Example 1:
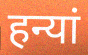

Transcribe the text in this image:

हन्यां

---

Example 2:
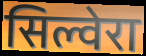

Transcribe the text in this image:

सिल्वेरा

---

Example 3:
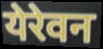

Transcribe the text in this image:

येरेवन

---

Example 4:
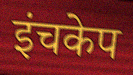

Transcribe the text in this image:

इंचकेप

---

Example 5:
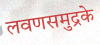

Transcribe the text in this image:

लवणसमुद्रके